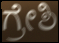
ಗ್ರೇಶಿ